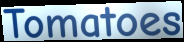
Tomatoes